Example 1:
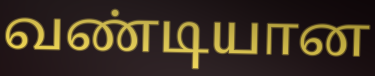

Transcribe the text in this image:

வண்டியான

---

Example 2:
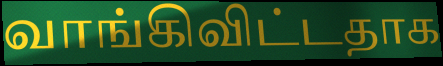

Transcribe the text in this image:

வாங்கிவிட்டதாக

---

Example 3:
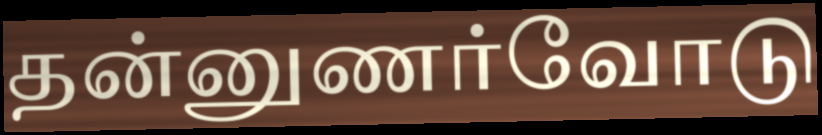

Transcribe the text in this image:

தன்னுணர்வோடு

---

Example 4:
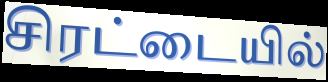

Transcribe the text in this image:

சிரட்டையில்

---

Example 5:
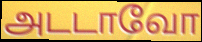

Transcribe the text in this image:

அடடாவோ